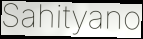
Sahityano